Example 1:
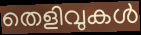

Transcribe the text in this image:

തെളിവുകൾ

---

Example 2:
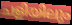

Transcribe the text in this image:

ചളിയിലും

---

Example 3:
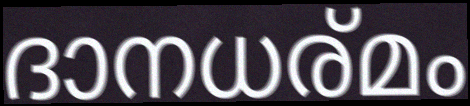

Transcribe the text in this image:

ദാനധര്മം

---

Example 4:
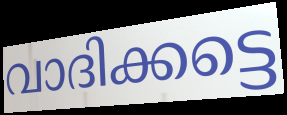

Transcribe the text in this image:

വാദിക്കട്ടെ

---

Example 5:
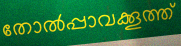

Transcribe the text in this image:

തോൽപ്പാവക്കൂത്ത്